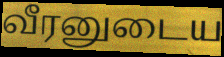
வீரனுடைய